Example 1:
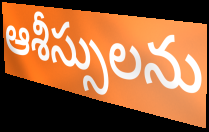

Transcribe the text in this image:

ఆశీస్సులను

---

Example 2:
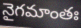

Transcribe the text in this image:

నైగమాంతః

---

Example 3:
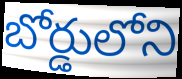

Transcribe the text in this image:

బోర్డులోని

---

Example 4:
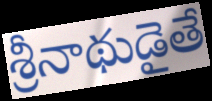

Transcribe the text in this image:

శ్రీనాథుడైతే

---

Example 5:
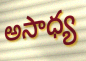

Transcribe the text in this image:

అసాధ్య